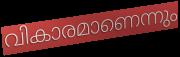
വികാരമാണെന്നും